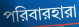
পরিবারহারা